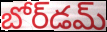
బోర్‌డమ్